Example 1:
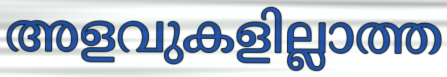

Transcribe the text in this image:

അളവുകളില്ലാത്ത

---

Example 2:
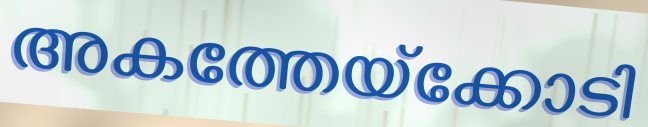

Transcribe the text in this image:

അകത്തേയ്‌ക്കോടി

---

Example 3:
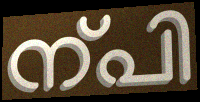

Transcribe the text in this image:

ന്പി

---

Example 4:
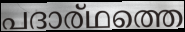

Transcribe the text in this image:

പദാര്ഥത്തെ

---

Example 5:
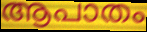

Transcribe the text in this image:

ആപാതം